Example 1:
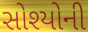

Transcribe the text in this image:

સોશ્યોની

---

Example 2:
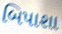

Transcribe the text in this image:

બિપાશા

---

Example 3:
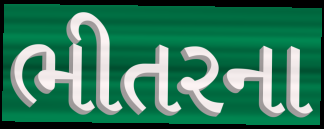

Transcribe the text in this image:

ભીતરના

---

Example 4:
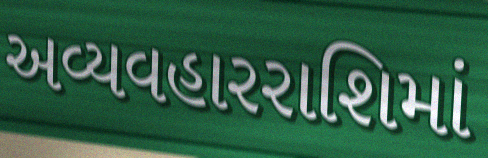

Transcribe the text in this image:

અવ્યવહારરાશિમાં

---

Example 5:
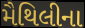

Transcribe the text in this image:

મૈથિલીના